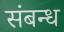
संबन्ध